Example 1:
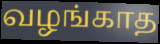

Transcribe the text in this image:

வழங்காத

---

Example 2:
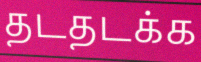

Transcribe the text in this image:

தடதடக்க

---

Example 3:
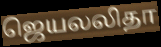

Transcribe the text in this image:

ஜெயலலிதா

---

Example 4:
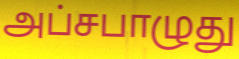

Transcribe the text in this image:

அப்சபாழுது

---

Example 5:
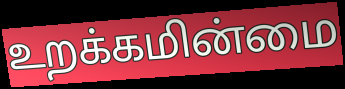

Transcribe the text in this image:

உறக்கமின்மை